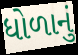
ધોળાનું